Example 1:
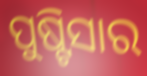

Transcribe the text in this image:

ପୁଷ୍ଟିସାର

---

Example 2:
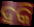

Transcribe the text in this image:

ହକି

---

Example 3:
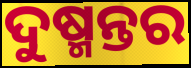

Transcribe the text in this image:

ଦୁଷ୍ମନ୍ତର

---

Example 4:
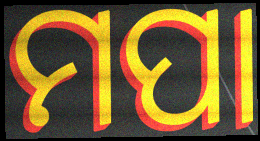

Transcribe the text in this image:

ମପା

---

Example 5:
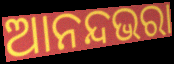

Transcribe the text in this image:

ଆନନ୍ଦଭରା